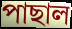
পাছাল